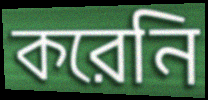
করেনি